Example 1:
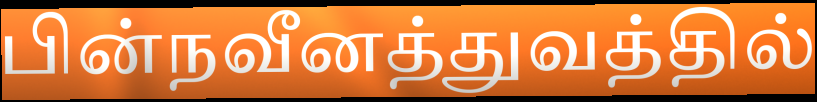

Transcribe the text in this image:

பின்நவீனத்துவத்தில்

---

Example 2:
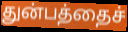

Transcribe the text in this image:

துன்பத்தைச்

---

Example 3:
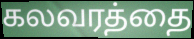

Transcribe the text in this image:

கலவரத்தை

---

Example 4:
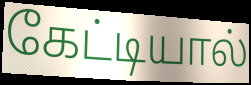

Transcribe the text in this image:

கேட்டியால்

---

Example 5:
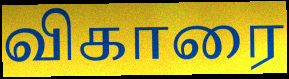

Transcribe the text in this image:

விகாரை